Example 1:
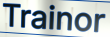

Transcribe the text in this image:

Trainor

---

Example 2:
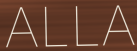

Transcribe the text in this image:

ALLA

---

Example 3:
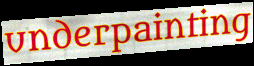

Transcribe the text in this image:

underpainting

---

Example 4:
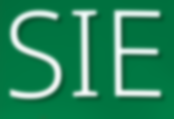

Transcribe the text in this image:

SIE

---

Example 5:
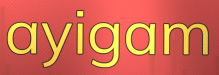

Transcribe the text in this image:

ayigam